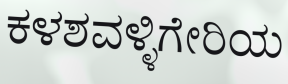
ಕಳಶವಳ್ಳಿಗೇರಿಯ